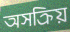
অসক্রিয়